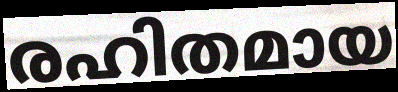
രഹിതമായ